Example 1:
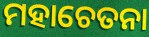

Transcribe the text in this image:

ମହାଚେତନା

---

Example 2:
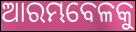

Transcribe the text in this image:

ଆରମ୍ଭବେଳକୁ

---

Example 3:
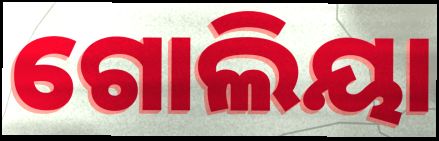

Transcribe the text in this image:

ଗୋଲିୟା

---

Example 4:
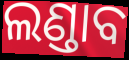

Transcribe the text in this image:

ଲଣ୍ଡାବ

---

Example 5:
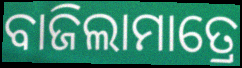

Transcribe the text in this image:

ବାଜିଲାମାତ୍ରେ